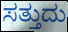
ಸತ್ತುದು